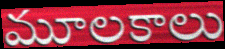
మూలకాలు